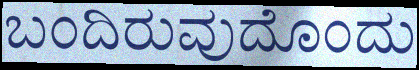
ಬಂದಿರುವುದೊಂದು